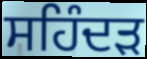
ਸਹਿੰਦੜ